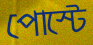
পোস্টে